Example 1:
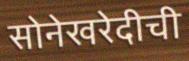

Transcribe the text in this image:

सोनेखरेदीची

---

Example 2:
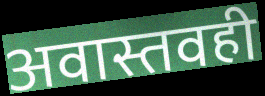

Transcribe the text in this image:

अवास्तवही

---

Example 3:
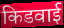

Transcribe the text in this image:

किडवाई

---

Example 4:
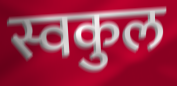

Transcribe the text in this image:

स्वकुल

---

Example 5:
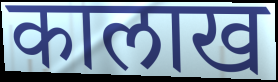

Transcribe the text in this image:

कालाख